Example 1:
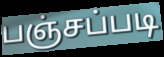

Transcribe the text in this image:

பஞ்சப்படி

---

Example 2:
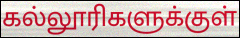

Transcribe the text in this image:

கல்லூரிகளுக்குள்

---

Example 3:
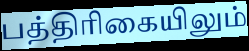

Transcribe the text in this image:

பத்திரிகையிலும்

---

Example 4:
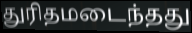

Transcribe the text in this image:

துரிதமடைந்தது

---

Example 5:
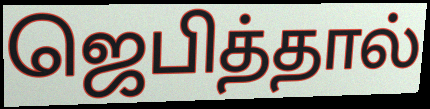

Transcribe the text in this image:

ஜெபித்தால்